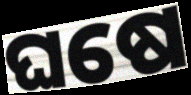
ଘଷେ